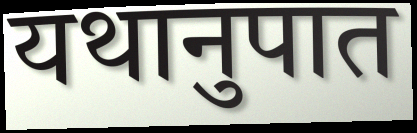
यथानुपात